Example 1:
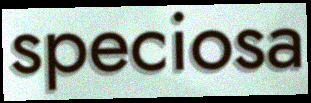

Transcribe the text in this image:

speciosa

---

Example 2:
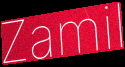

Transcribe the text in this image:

Zamil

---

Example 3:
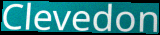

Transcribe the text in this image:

Clevedon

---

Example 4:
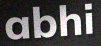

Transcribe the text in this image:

abhi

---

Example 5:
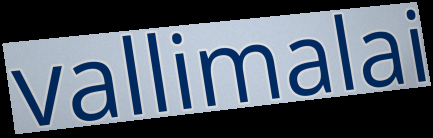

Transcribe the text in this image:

vallimalai